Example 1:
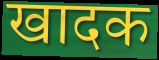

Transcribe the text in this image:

खादक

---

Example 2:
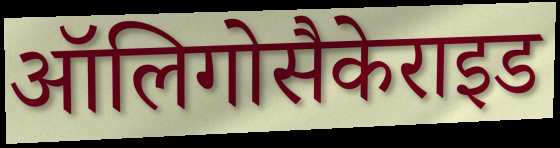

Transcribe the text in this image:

ऑलिगोसैकेराइड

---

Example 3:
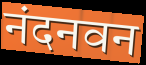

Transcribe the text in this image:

नंदनवन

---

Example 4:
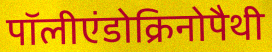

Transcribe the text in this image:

पॉलीएंडोक्रिनोपैथी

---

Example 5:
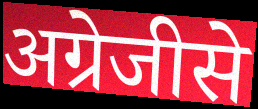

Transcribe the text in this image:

अग्रेजीसे